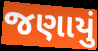
જણાયું